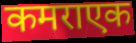
कमराएक